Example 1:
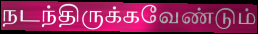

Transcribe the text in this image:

நடந்திருக்கவேண்டும்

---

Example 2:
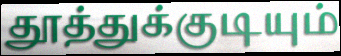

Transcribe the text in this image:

தூத்துக்குடியும்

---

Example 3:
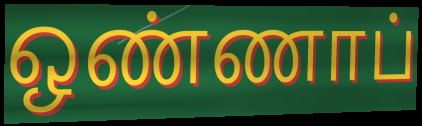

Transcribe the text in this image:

ஒண்ணாப்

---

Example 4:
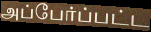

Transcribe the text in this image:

அப்பேர்ப்பட்ட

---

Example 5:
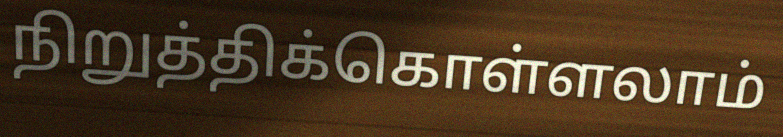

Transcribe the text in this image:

நிறுத்திக்கொள்ளலாம்